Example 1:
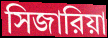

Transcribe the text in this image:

সিজারিয়া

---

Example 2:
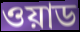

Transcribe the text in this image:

ওয়াড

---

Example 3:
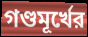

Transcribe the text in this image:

গণ্ডমূর্খের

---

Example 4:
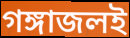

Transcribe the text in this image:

গঙ্গাজলই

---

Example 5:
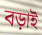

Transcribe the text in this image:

বড়াই